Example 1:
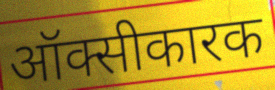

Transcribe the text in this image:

ऑक्सीकारक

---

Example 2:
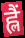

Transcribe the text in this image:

ह्लैं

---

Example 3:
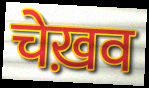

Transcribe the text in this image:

चेख़व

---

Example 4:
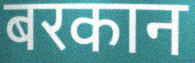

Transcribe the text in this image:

बरकान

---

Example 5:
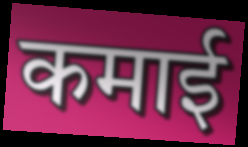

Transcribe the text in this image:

कमाई